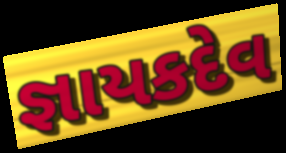
જ્ઞાયકદેવ